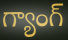
గ్యాంగ్